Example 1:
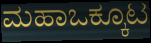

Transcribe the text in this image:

ಮಹಾಒಕ್ಕೂಟ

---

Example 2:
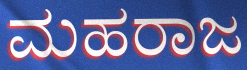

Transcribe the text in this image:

ಮಹರಾಜ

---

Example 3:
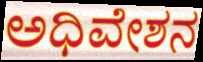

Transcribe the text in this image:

ಅಧಿವೇಶನ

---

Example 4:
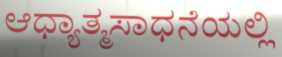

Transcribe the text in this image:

ಆಧ್ಯಾತ್ಮಸಾಧನೆಯಲ್ಲಿ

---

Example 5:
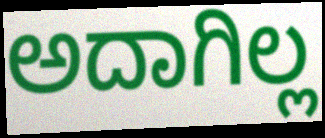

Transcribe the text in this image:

ಅದಾಗಿಲ್ಲ